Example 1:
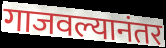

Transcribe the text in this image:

गाजवल्यानंतर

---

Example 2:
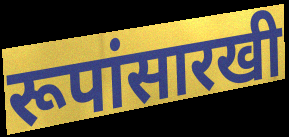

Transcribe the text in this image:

रूपांसारखी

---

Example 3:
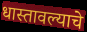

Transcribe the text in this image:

धास्तावल्याचे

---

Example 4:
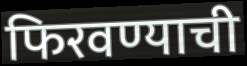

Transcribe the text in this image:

फिरवण्याची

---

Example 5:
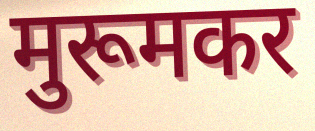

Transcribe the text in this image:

मुरूमकर